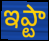
ఇప్టా